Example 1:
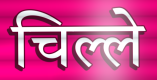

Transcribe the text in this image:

चिल्ले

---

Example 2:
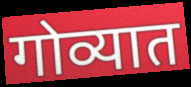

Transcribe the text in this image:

गोव्यात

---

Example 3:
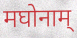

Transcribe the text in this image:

मघोनाम्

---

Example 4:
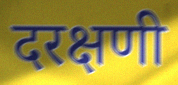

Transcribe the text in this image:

दरक्षणी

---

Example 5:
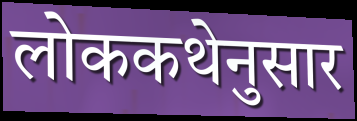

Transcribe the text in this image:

लोककथेनुसार